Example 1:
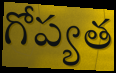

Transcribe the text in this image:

గోప్యత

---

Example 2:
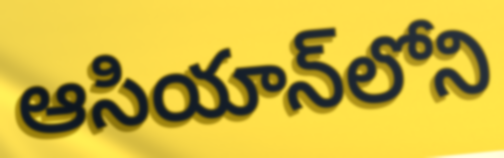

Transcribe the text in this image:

ఆసియాన్‌లోని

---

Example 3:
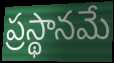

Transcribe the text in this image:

ప్రస్థానమే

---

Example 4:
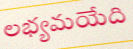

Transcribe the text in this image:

లభ్యమయేది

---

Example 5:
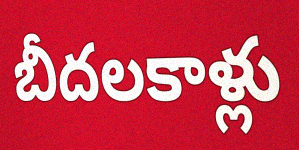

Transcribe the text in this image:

బీదలకాళ్లు